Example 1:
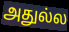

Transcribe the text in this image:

அதுல்ல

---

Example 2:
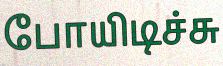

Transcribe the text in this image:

போயிடிச்சு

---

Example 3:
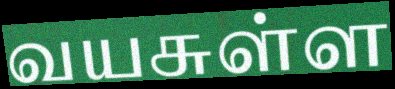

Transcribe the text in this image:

வயசுள்ள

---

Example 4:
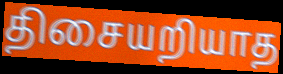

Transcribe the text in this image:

திசையறியாத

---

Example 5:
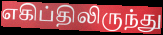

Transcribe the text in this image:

எகிப்திலிருந்து